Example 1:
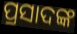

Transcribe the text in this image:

ପ୍ରସାଦଙ୍କ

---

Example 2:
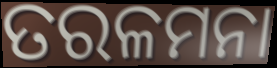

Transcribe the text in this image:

ତରଳମନା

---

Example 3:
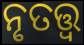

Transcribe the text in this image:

ନୃତତ୍ତ୍ୱ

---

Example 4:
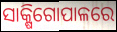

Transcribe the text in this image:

ସାକ୍ଷିଗୋପାଳରେ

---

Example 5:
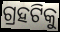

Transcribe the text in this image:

ଗ୍ରହଟିକୁ